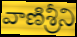
వాణిశ్రీని